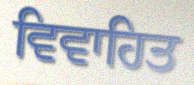
ਵਿਵਾਹਿਤ